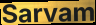
Sarvam